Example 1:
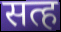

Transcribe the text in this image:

सत्ह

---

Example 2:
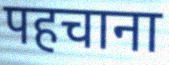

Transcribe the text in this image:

पहचाना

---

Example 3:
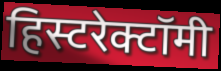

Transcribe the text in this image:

हिस्टरेक्टॉमी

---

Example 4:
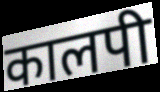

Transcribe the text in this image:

कालपी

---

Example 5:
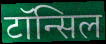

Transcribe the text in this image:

टॉन्सिल